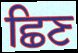
ਛਿਣ